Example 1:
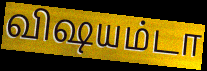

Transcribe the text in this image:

விஷயம்டா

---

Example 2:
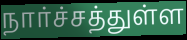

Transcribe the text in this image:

நார்ச்சத்துள்ள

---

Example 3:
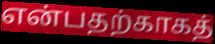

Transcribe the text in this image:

என்பதற்காகத்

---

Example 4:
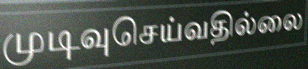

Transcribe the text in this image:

முடிவுசெய்வதில்லை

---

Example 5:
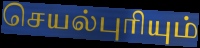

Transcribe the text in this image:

செயல்புரியும்